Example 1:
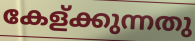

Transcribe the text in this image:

കേള്ക്കുന്നതു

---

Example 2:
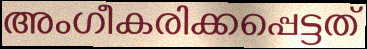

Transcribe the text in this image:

അംഗീകരിക്കപ്പെട്ടത്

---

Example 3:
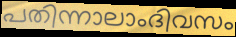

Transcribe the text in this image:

പതിന്നാലാംദിവസം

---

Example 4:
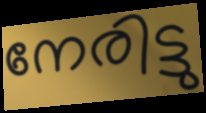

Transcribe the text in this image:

നേരിട്ടു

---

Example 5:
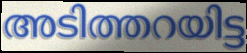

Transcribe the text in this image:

അടിത്തറയിട്ട